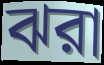
ঝরা